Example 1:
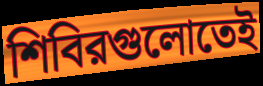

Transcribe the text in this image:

শিবিরগুলোতেই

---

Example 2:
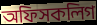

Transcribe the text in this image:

অফিসকলিগ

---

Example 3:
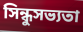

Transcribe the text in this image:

সিন্ধুসভ্যতা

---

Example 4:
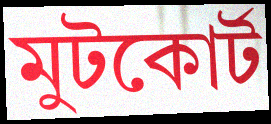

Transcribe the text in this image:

মুটকোর্ট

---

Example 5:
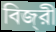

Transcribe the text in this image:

বিজ্‌রী